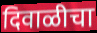
दिवाळीचा